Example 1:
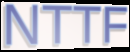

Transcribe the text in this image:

NTTF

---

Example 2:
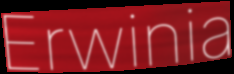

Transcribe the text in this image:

Erwinia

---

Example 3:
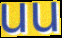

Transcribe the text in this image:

uu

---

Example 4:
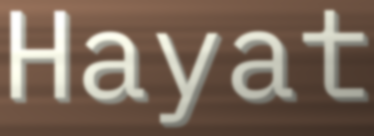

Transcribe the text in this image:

Hayat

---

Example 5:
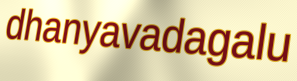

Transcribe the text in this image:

dhanyavadagalu